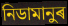
নিডামানুৰ